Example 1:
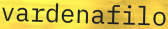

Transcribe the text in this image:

vardenafilo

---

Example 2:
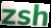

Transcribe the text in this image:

zsh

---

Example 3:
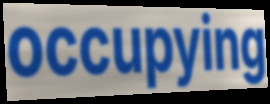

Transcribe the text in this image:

occupying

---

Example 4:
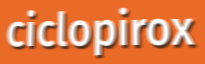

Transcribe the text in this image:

ciclopirox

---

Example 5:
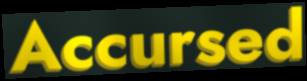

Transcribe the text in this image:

Accursed